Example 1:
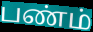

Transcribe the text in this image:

பண்ம்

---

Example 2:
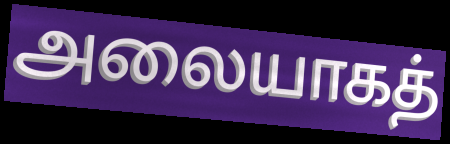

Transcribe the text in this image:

அலையாகத்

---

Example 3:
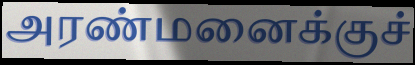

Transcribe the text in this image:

அரண்மனைக்குச்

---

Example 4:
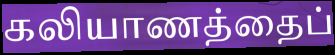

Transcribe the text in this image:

கலியாணத்தைப்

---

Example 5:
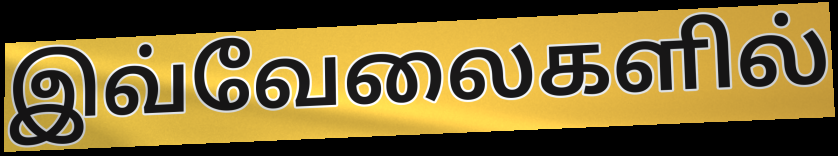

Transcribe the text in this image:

இவ்வேலைகளில்